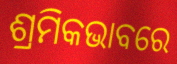
ଶ୍ରମିକଭାବରେ